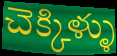
చెక్కిళ్ళు